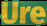
Ure